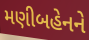
મણીબહેનને